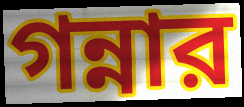
গন্নার